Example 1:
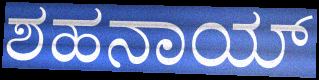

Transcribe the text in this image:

ಶಹನಾಯ್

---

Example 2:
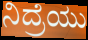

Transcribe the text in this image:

ನಿದ್ರೆಯು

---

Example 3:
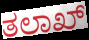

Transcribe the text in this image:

ತಲಾಖ್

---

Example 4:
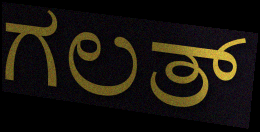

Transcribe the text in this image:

ಗಲತ್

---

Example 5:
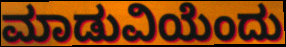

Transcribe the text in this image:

ಮಾಡುವಿಯೆಂದು